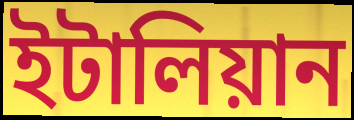
ইটালিয়ান